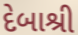
દેબાશ્રી